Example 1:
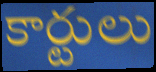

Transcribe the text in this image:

కార్టులు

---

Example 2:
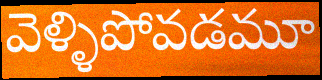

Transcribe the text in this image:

వెళ్ళిపోవడమూ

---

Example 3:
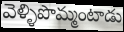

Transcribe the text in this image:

వెళ్ళిపొమ్మంటాడు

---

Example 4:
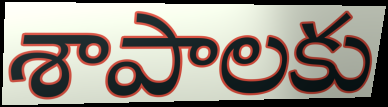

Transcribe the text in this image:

శాపాలకు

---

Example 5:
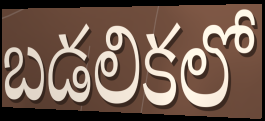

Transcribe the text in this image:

బడలికలో